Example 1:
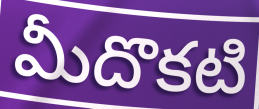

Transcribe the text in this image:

మీదొకటి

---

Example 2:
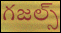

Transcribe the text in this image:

గజల్స్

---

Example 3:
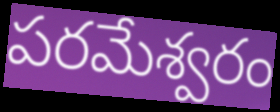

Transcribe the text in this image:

పరమేశ్వరం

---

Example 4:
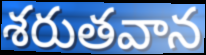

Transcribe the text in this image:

శరుతవాన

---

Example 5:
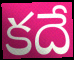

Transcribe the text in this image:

కదే